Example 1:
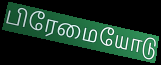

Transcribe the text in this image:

பிரேமையோடு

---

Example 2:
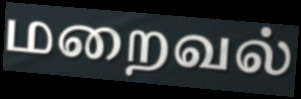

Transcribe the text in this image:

மறைவல்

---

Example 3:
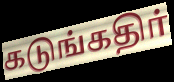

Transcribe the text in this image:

கடுங்கதிர்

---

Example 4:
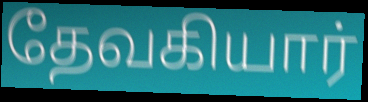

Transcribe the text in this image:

தேவகியார்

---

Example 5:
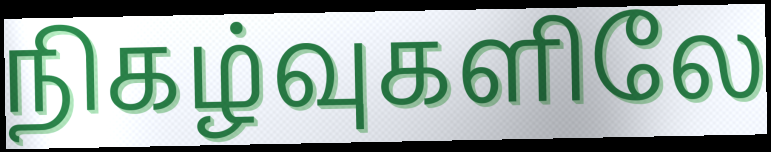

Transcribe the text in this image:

நிகழ்வுகளிலே